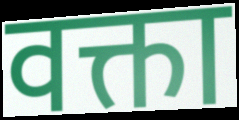
वक्ता